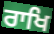
ਰਾਖਿ